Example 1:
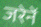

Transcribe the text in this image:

जरेनें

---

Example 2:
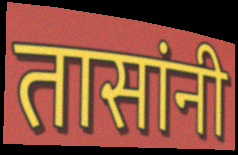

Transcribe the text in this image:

तासांनी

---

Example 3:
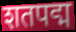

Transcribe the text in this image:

शतपद्म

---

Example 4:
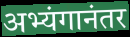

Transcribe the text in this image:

अभ्यंगानंतर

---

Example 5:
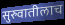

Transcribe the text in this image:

सुरुवातीलाच